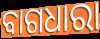
ବାଗଧାରା